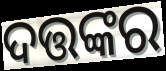
ଦତ୍ତଙ୍କର